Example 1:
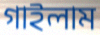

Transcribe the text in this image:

গাইলাম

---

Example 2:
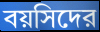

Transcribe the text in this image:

বয়সিদের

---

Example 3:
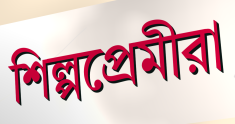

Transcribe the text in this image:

শিল্পপ্রেমীরা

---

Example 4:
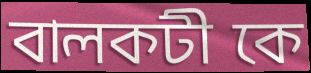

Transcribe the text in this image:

বালকটীকে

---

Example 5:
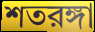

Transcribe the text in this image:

শতরঙ্গা